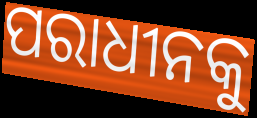
ପରାଧୀନକୁ